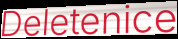
Deletenice